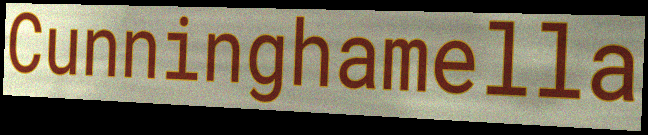
Cunninghamella